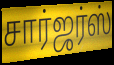
சார்ஜர்ஸ்